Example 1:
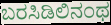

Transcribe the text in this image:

ಬರಸಿಡಿಲಿನಂಥ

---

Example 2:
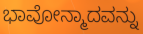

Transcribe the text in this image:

ಭಾವೋನ್ಮಾದವನ್ನು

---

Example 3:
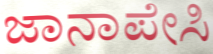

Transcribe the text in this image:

ಜಾನಾಪೇಸಿ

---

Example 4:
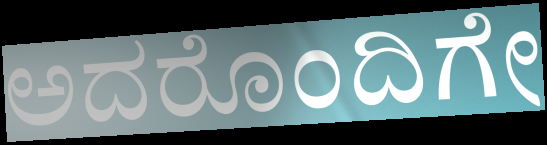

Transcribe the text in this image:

ಅದರೊಂದಿಗೇ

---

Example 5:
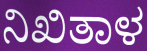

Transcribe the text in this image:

ನಿಖಿತಾಳ